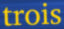
trois